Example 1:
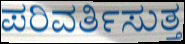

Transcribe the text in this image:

ಪರಿವರ್ತಿಸುತ್ತ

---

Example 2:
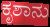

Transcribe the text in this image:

ಕೃಶಾನು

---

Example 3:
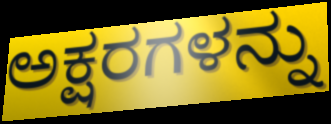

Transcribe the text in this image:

ಅಕ್ಷರಗಳನ್ನು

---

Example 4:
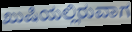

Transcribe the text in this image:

ಖುಷಿಯಲ್ಲಿರುವಾಗ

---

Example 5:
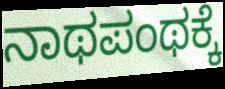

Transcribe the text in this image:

ನಾಥಪಂಥಕ್ಕೆ